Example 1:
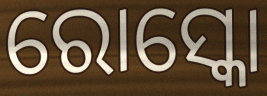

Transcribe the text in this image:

ରୋସ୍କୋ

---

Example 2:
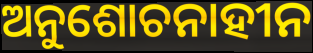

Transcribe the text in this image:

ଅନୁଶୋଚନାହୀନ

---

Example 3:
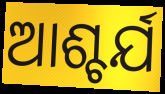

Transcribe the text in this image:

ଆଶ୍ଚର୍ଯ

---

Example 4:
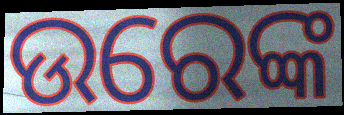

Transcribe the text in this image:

ଉରେଙ୍କ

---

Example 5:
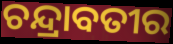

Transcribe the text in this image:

ଚନ୍ଦ୍ରାବତୀର